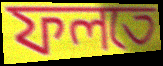
ফলতে